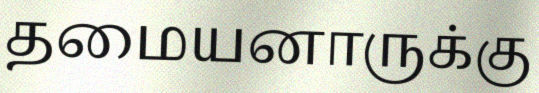
தமையனாருக்கு